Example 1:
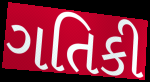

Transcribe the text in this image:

ગતિકી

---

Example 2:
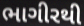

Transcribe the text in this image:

ભાગીરથી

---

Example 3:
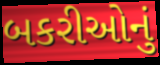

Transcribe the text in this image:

બકરીઓનું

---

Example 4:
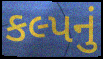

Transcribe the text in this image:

કલ્પનું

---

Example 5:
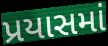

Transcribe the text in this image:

પ્રયાસમાં